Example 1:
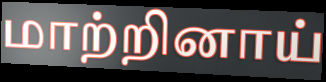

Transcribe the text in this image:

மாற்றினாய்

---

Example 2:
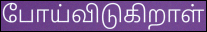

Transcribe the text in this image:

போய்விடுகிறாள்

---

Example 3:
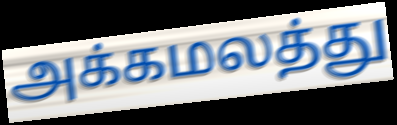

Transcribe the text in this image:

அக்கமலத்து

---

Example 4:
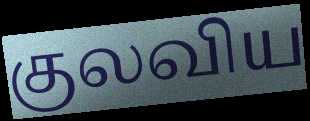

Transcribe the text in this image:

குலவிய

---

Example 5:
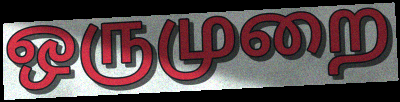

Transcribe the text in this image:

ஒருமுறை